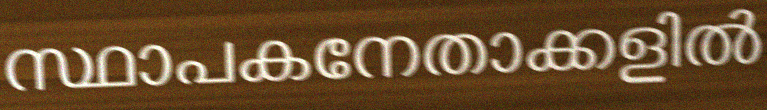
സ്ഥാപകനേതാക്കളിൽ